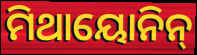
ମିଥାୟୋନିନ୍